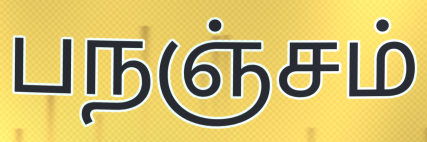
பநஞ்சம்